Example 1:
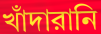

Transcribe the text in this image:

খাঁদারানি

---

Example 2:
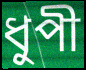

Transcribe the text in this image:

ধুপী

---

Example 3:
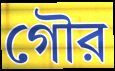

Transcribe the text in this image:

গৌর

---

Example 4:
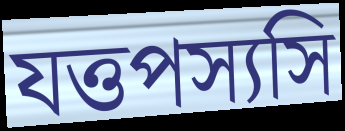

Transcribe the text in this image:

যত্তপস্যসি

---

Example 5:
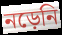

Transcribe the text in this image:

নড়েনি